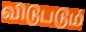
விடுபடும்